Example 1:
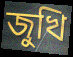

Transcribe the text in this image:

জুখি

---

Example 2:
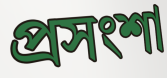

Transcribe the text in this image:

প্ৰসংশা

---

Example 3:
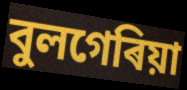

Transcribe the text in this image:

বুলগেৰিয়া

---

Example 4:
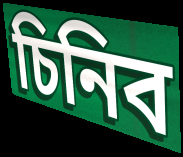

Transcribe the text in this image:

চিনিব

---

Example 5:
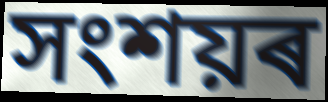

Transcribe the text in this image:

সংশয়ৰ